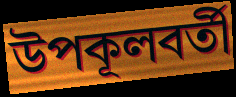
উপকূলবর্তী